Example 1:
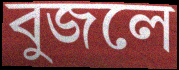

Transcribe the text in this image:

বুজলে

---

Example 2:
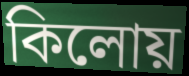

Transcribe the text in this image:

কিলোয়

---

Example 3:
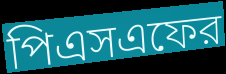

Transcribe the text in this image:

পিএসএফের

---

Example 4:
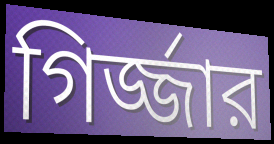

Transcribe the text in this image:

গির্জ্জার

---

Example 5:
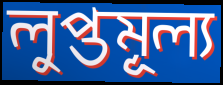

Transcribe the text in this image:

লুপ্তমূল্য